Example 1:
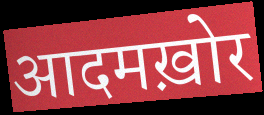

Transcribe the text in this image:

आदमख़ोर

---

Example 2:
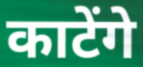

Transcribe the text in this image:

काटेंगे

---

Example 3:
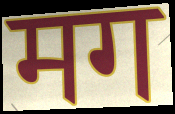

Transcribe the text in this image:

मग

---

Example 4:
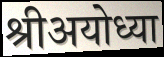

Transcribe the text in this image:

श्रीअयोध्या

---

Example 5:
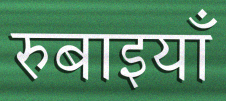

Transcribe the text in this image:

रुबाइयाँ